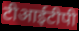
टीआईटीपी